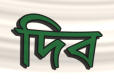
দিব